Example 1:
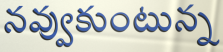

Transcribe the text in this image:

నవ్వుకుంటున్న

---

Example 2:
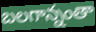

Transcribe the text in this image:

బలగాన్నంతా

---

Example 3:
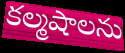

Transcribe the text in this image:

కల్మషాలను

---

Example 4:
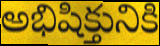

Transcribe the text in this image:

అభిషిక్తునికి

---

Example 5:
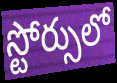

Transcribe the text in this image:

స్టోర్సులో